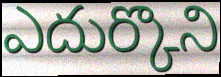
ఎదుర్కొని